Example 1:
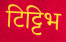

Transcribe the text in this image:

टिट्टिभ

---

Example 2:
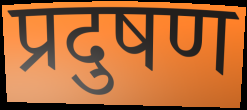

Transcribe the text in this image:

प्रदुषण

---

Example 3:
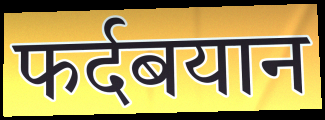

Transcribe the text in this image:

फर्दबयान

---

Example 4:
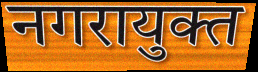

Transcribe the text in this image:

नगरायुक्त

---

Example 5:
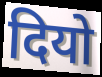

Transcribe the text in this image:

दियो